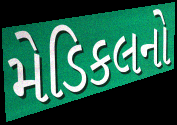
મેડિકલનો